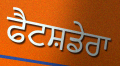
ਫੈਟਸ਼ਡੇਰਾ